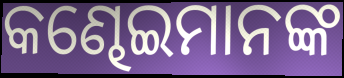
କଣ୍ଢେଇମାନଙ୍କ